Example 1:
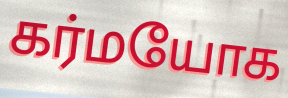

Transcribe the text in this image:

கர்மயோக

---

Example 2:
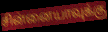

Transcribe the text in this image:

சின்னையாவுக்கு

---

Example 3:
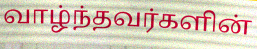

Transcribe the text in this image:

வாழ்ந்தவர்களின்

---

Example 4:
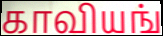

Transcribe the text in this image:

காவியங்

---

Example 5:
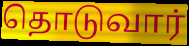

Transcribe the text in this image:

தொடுவார்